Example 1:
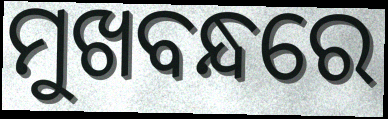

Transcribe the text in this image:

ମୁଖବନ୍ଧରେ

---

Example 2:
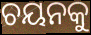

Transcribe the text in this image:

ଚୟନକୁ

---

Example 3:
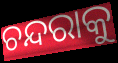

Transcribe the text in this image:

ଚନ୍ଦରାକୁ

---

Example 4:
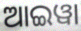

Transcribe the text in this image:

ଆଇୱା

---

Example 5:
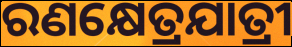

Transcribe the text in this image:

ରଣକ୍ଷେତ୍ରଯାତ୍ରୀ